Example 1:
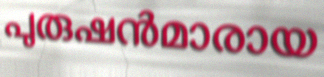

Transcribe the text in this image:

പുരുഷൻമാരായ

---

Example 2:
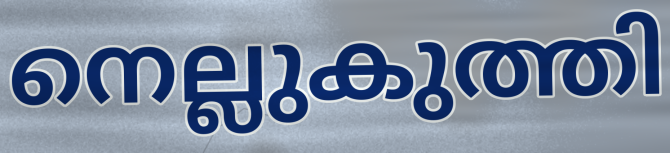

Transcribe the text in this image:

നെല്ലുകുത്തി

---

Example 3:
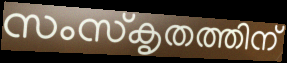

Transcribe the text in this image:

സംസ്കൃതത്തിന്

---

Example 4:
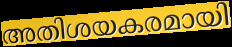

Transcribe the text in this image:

അതിശയകരമായി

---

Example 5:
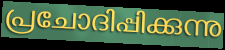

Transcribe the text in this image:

പ്രചോദിപ്പിക്കുന്നു